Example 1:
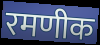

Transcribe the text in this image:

रमणीक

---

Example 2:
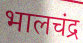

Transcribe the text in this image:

भालचंद्र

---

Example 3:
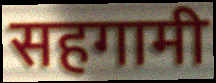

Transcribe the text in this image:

सहगामी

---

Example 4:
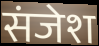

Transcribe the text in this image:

संजेश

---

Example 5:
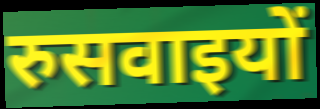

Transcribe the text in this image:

रुसवाइयों